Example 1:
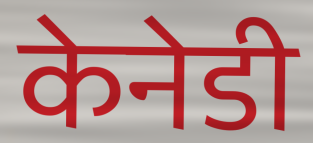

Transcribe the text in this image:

केनेडी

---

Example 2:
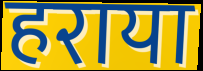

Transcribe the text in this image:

हराया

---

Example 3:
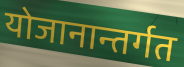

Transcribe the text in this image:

योजानान्तर्गत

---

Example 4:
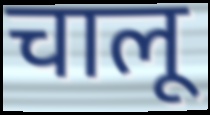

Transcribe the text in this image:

चालू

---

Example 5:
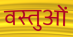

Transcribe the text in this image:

वस्‍तुओं